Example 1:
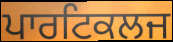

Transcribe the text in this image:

ਪਾਰਟਿਕਲਜ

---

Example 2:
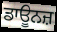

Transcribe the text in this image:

ਡਾਊਨਜ਼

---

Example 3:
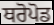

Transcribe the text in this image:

ਥਰੋਪੋਡ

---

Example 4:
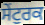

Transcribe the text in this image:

ਸੇਂਟੁਰਕ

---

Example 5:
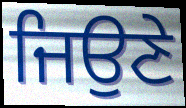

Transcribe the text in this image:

ਜਿਉਣੇ